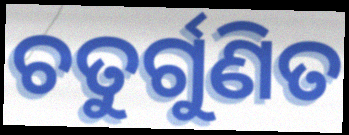
ଚତୁର୍ଗୁଣିତ